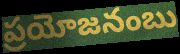
ప్రయోజనంబు